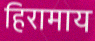
हिरामाय